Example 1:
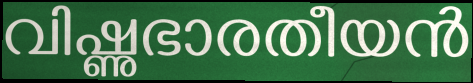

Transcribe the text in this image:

വിഷ്ണുഭാരതീയൻ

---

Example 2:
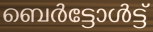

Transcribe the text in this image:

ബെർട്ടോൾട്ട്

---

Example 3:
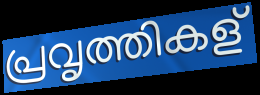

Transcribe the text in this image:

പ്രവൃത്തികള്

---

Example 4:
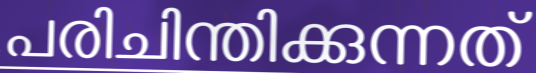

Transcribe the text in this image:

പരിചിന്തിക്കുന്നത്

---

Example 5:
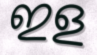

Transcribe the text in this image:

ഇള